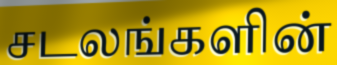
சடலங்களின்